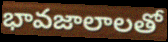
భావజాలాలతో